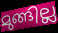
മുങ്ങില്ല